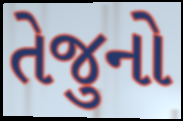
તેજુનો